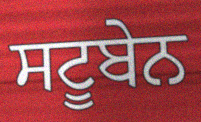
ਸਟੂਬੇਨ